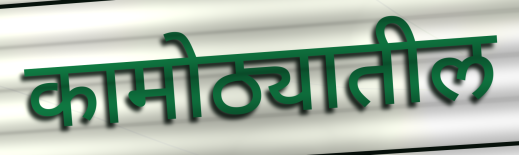
कामोठ्यातील